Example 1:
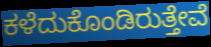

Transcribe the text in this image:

ಕಳೆದುಕೊಂಡಿರುತ್ತೇವೆ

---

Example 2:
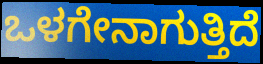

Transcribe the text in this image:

ಒಳಗೇನಾಗುತ್ತಿದೆ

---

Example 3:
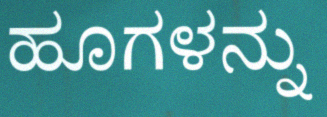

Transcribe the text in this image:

ಹೂಗಳನ್ನು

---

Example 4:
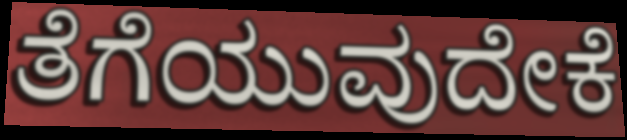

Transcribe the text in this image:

ತೆಗೆಯುವುದೇಕೆ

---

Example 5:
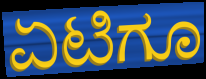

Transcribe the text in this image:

ಏಟಿಗೂ